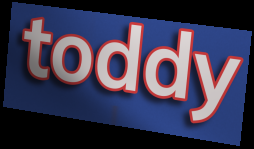
toddy